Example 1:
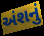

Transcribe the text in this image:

અંશનું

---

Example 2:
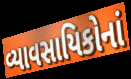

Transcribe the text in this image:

વ્યાવસાયિકોનાં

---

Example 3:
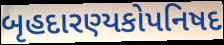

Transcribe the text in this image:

બૃહદારણ્યકોપનિષદ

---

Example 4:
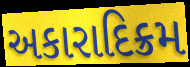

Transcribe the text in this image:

અકારાદિક્રમ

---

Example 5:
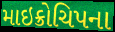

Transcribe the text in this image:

માઇક્રોચિપના